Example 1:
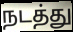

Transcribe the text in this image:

நடத்து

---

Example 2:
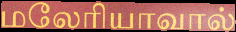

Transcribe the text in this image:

மலேரியாவால்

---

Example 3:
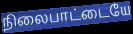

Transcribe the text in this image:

நிலைபாட்டையே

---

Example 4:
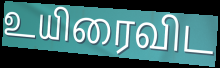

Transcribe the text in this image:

உயிரைவிட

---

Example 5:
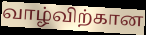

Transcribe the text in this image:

வாழ்விற்கான